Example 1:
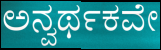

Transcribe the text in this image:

ಅನ್ವರ್ಥಕವೇ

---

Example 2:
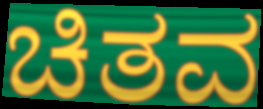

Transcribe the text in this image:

ಚಿತವ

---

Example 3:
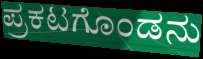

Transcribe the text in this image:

ಪ್ರಕಟಗೊಂಡನು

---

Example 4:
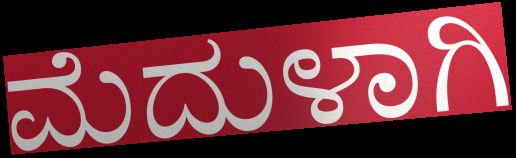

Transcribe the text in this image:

ಮೆದುಳಾಗಿ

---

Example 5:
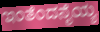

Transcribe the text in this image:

ಇಂತೆಂದನೈಯ್ಯ